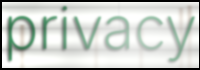
privacy